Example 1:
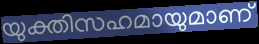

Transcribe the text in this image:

യുക്തിസഹമായുമാണ്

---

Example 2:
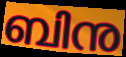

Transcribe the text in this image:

ബിനു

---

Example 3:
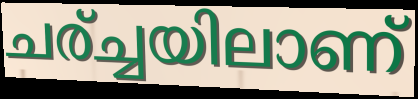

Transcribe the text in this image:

ചര്ച്ചയിലാണ്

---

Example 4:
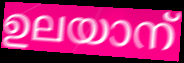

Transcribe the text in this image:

ഉലയാന്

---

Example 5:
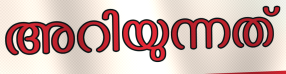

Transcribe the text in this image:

അറിയുന്നത്